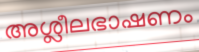
അശ്ലീലഭാഷണം